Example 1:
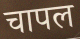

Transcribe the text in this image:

चापल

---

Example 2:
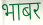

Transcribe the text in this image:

भाबर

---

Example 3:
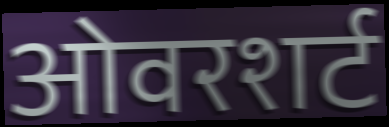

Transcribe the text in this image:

ओवरशर्ट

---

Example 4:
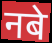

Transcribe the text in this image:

नबे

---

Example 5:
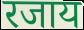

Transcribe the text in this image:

रजाय